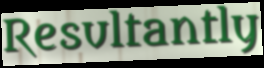
Resultantly